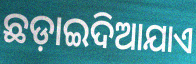
ଛଡ଼ାଇଦିଆଯାଏ